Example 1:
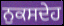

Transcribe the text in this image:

ਨੁਕਸਦੇਹ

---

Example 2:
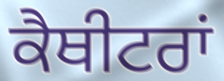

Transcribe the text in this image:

ਕੈਥੀਟਰਾਂ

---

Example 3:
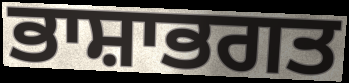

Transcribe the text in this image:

ਭਾਸ਼ਾਭਗਤ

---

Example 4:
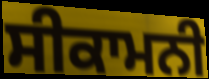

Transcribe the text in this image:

ਸੀਕਾਮਨੀ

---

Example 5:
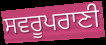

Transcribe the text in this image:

ਸਵਰੂਪਰਾਣੀ